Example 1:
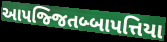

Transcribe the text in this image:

આપજ્જિતબ્બાપત્તિયા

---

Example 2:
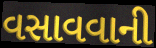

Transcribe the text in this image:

વસાવવાની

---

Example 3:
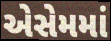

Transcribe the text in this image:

એસેમમાં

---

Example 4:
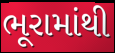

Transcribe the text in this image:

ભૂરામાંથી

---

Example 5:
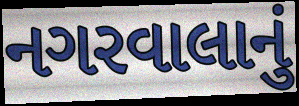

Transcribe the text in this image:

નગરવાલાનું